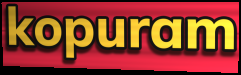
kopuram